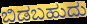
ಬಿಡಬಹುದು